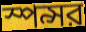
স্পন্সর